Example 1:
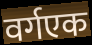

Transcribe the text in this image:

वर्गएक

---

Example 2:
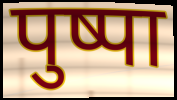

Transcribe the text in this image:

पुष्पा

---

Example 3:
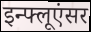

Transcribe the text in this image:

इन्फ्लूएंसर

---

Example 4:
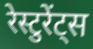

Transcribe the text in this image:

रेस्टुरेंट्स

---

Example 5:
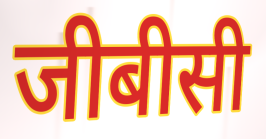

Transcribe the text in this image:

जीबीसी